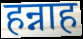
हन्नाह